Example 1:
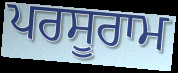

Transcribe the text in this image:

ਪਰਸੂਰਾਮ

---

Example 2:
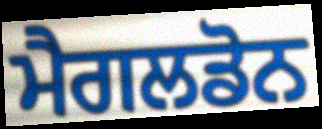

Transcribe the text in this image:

ਮੈਗਲਡੋਨ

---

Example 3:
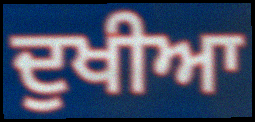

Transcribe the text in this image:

ਦੁਖੀਆ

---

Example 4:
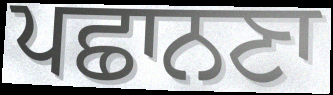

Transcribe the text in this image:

ਪਛਾਨਣਾ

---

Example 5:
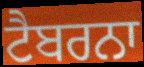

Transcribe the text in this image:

ਟੈਬਰਨਾ